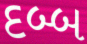
દબ્બ